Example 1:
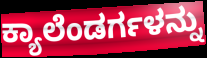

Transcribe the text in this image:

ಕ್ಯಾಲೆಂಡರ್ಗಳನ್ನು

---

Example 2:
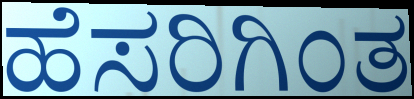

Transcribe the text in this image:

ಹೆಸರಿಗಿಂತ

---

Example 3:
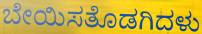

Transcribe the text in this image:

ಬೇಯಿಸತೊಡಗಿದಳು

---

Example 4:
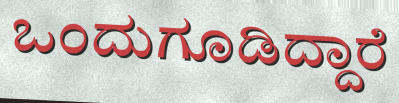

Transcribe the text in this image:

ಒಂದುಗೂಡಿದ್ದಾರೆ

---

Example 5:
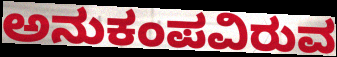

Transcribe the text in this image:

ಅನುಕಂಪವಿರುವ